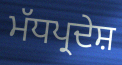
ਮੱਧਪ੍ਰਦੇਸ਼